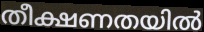
തീക്ഷണതയിൽ